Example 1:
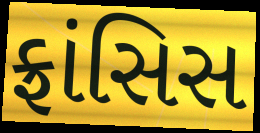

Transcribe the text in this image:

ફ્રાંસિસ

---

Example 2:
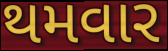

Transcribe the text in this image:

થમવાર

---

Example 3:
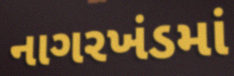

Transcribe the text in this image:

નાગરખંડમાં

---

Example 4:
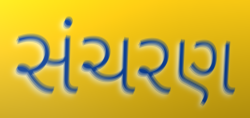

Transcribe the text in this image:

સંચરણ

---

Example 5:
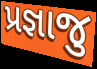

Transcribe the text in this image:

પ્રજ્ઞાજુ